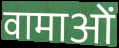
वामाओं